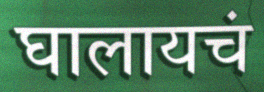
घालायचं